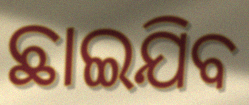
ଛାଇଯିବ